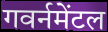
गवर्नमेंटल